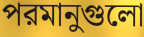
পরমানুগুলো